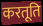
करतूति